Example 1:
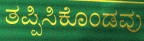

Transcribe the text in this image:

ತಪ್ಪಿಸಿಕೊಂಡವು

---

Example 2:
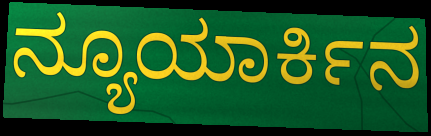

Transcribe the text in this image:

ನ್ಯೂಯಾರ್ಕಿನ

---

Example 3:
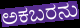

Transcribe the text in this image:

ಅಕಬರನು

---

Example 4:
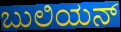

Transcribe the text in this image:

ಬುಲಿಯನ್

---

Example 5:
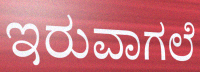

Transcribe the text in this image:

ಇರುವಾಗಲೆ